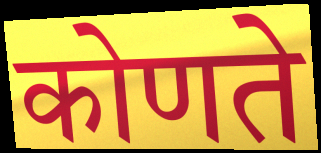
कोणते